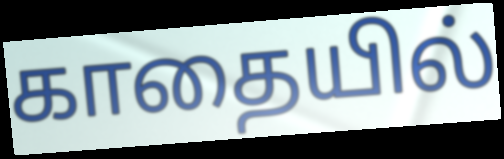
காதையில்